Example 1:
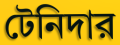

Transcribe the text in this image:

টেনিদার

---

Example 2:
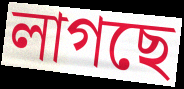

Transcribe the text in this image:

লাগছে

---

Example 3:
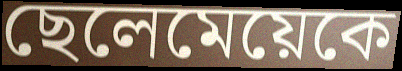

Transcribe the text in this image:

ছেলেমেয়েকে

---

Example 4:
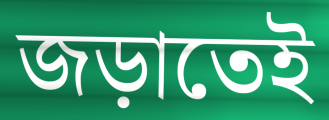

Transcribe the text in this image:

জড়াতেই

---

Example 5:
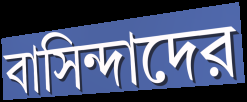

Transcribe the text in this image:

বাসিন্দাদের